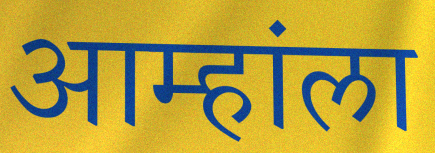
आम्हांला